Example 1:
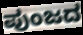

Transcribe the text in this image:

ಪುಂಜದ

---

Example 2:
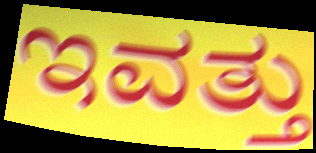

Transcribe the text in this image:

ಇವತ್ತು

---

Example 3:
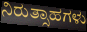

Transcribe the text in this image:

ನಿರುತ್ಸಾಹಗಳು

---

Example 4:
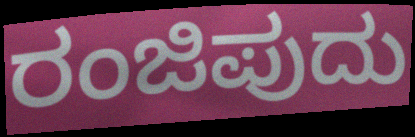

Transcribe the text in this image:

ರಂಜಿಪುದು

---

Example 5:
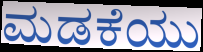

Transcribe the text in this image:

ಮಡಕೆಯು